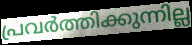
പ്രവർത്തിക്കുന്നില്ല